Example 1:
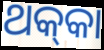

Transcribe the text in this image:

ଥକ୍‍କା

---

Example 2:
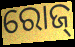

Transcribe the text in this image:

ରୋଜ୍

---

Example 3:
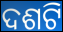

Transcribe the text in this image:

ଦଶଟି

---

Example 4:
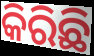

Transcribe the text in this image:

କିରିଛି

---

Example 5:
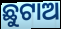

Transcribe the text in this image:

ଛୁଟାଅ